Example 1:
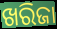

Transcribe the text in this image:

ଖରିଜା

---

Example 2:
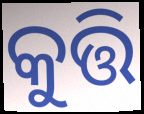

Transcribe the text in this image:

କୁତ୍ତି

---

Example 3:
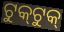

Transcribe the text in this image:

ଟୁକ୍‌ଟୁକ୍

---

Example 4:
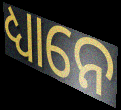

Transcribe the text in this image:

ଧ୍ୟାନେ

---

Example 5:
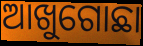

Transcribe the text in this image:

ଆଖୁଗୋଛା